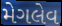
મેગલેવ